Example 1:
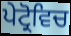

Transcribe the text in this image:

ਪੇਟ੍ਰੋਵਿਚ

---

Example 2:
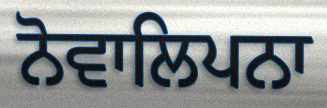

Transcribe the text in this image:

ਨੋਵਾਲਿਪਨਾ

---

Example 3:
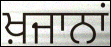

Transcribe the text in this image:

ਖ਼ਜਾਨਾਂ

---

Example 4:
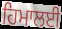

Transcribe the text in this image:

ਹਿਮਾਲਈ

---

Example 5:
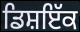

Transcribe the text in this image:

ਡਿਸ਼ਇੱਕ